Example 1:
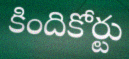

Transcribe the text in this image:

కిందికోర్టు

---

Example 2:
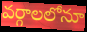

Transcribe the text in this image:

వర్గాలలోనూ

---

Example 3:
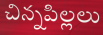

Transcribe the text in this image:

చిన్నపిల్లలు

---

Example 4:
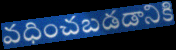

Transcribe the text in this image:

వధించబడడానికి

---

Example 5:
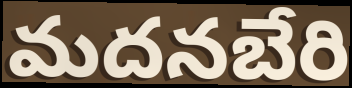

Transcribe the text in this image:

మదనబేరి